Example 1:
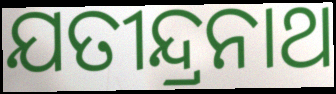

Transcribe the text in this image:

ଯତୀନ୍ଦ୍ରନାଥ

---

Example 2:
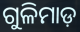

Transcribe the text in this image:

ଗୁଳିମାଡ଼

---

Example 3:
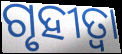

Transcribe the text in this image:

ଗୃହୀତ୍ଵା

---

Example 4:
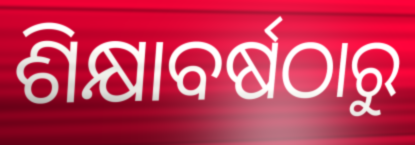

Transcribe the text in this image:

ଶିକ୍ଷାବର୍ଷଠାରୁ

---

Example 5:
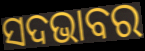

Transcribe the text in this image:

ସଦଭାବର